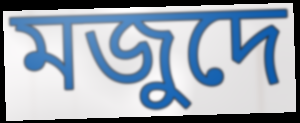
মজুদে